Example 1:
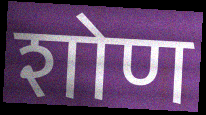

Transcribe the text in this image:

शोण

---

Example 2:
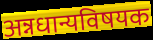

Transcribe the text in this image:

अन्नधान्यविषयक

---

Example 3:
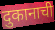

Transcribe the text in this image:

दुकानाची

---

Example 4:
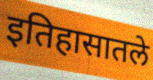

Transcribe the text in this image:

इतिहासातले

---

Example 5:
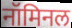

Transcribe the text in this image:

नॉमिनल